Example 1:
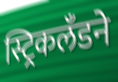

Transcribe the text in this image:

स्ट्रिकलँडने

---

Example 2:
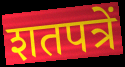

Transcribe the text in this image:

शतपत्रें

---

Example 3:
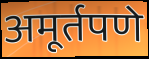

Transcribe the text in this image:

अमूर्तपणे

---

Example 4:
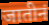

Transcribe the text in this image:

जातीनं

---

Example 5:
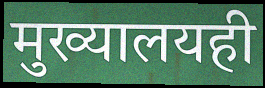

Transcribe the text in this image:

मुख्यालयही